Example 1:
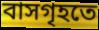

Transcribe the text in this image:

বাসগৃহতে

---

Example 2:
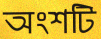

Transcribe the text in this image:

অংশটি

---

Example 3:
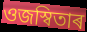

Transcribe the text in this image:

ওজস্বিতাৰ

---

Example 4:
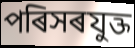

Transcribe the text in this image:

পৰিসৰযুক্ত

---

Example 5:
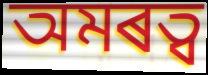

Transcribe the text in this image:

অমৰত্ব